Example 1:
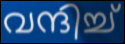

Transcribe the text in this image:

വന്ദിച്ച്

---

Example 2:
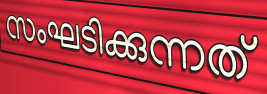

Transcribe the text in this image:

സംഘടിക്കുന്നത്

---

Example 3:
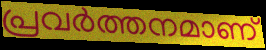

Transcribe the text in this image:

പ്രവർത്തനമാണ്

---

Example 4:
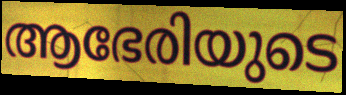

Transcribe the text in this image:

ആഭേരിയുടെ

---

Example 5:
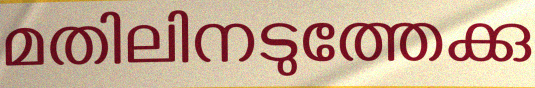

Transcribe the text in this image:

മതിലിനടുത്തേക്കു